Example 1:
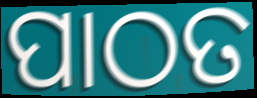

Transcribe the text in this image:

ପାଠତ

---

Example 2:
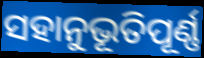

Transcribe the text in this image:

ସହାନୁଭୂତିପୂର୍ଣ୍ଣ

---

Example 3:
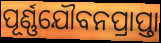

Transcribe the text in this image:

ପୂର୍ଣ୍ଣଯୌବନପ୍ରାପ୍ତା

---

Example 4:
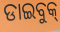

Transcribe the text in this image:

ଡାଇବୁକ୍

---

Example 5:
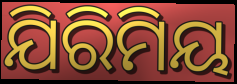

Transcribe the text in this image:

ଯିରିମିୟ